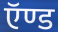
ऍण्ड